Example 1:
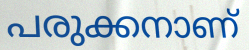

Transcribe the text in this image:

പരുക്കനാണ്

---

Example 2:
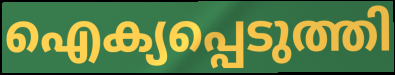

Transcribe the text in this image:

ഐക്യപ്പെടുത്തി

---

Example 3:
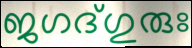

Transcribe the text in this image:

ജഗദ്ഗുരുഃ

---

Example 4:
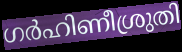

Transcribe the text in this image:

ഗർഹിണീശ്രുതി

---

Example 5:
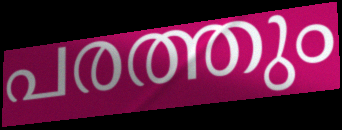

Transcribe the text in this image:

പരത്തും